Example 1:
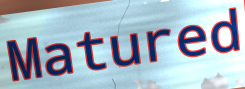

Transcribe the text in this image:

Matured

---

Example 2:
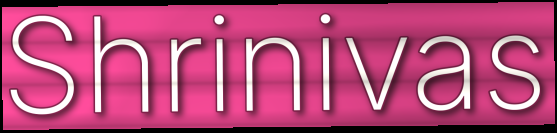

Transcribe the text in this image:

Shrinivas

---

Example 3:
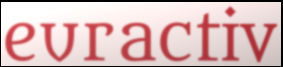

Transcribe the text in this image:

euractiv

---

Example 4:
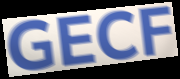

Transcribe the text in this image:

GECF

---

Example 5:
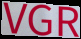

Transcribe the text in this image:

VGR